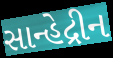
સાન્હેદ્રીન